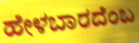
ಹೇಳಬಾರದೆಂಬ